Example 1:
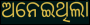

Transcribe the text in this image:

ଅନେଇଥିଲା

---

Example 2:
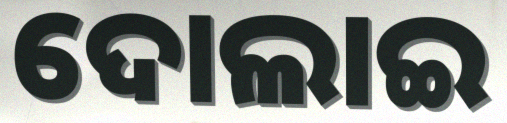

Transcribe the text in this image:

ଦୋଲାଇ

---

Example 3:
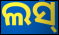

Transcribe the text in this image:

ଲସ୍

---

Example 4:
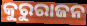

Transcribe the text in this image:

କୁରୁରାଜନ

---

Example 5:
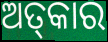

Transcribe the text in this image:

ଅତ୍‌କାର